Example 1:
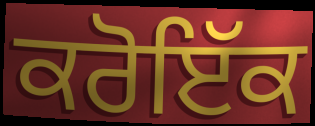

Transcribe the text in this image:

ਕਰੋਇੱਕ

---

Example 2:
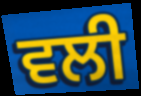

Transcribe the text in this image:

ਵਲੀ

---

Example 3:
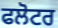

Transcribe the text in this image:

ਫਲੋਟਰ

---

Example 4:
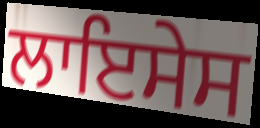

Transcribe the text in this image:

ਲਾਇਸੇਸ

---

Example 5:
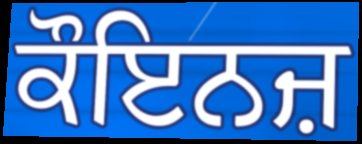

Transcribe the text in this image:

ਕੌਇਨਜ਼